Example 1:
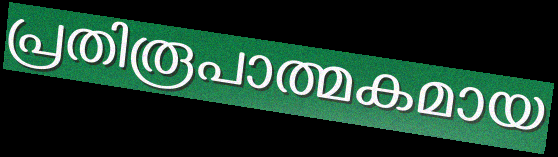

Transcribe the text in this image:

പ്രതിരൂപാത്മകമായ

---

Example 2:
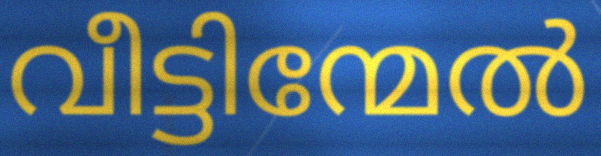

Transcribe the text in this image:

വീട്ടിന്മേൽ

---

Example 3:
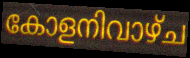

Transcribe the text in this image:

കോളനിവാഴ്ച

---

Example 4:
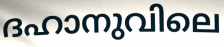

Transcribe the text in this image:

ദഹാനുവിലെ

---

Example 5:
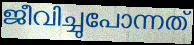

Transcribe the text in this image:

ജീവിച്ചുപോന്നത്